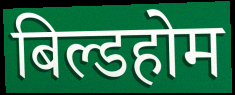
बिल्डहोम